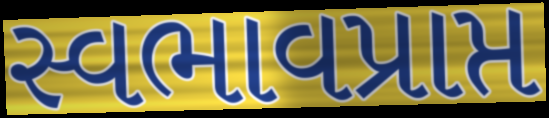
સ્વભાવપ્રાપ્ત